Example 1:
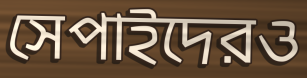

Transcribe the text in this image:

সেপাইদেরও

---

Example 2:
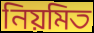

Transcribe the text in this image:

নিয়মিত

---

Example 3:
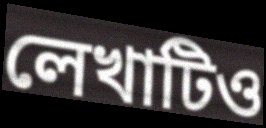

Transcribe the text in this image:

লেখাটিও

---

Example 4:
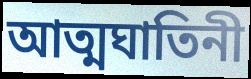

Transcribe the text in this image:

আত্মঘাতিনী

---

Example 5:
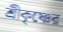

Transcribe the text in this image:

শ্রীকৃষ্ণের